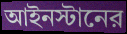
আইনস্টানের